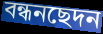
বন্ধনছেদন